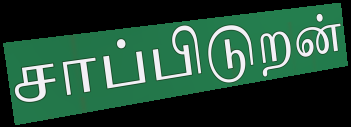
சாப்பிடுறன்